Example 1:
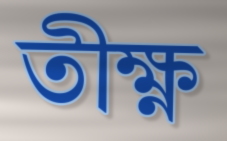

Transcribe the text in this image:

তীক্ষ্ণ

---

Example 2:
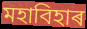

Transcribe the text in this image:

মহাবিহাৰ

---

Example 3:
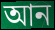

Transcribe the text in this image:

আন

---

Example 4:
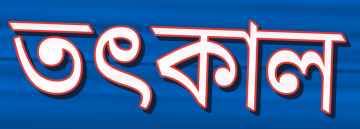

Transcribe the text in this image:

তৎকাল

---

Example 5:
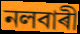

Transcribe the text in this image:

নলবাৰী